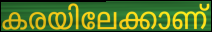
കരയിലേക്കാണ്